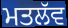
ਮਤਲੱਵ